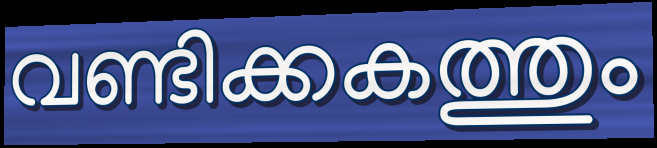
വണ്ടിക്കകത്തും